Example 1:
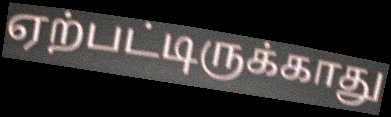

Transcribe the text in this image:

ஏற்பட்டிருக்காது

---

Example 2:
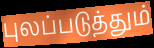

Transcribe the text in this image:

புலப்படுத்தும்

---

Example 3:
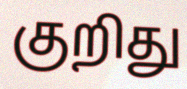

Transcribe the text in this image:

குறிது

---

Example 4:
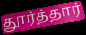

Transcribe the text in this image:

தூர்த்தார்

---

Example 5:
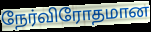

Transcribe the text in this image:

நேர்விரோதமான